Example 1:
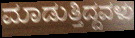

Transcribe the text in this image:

ಮಾಡುತ್ತಿದ್ದವಳು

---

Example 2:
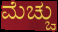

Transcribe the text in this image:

ಮೆಚ್ಚು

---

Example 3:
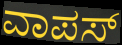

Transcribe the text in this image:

ವಾಪಸ್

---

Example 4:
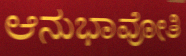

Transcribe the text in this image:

ಆನುಭಾವೋತಿ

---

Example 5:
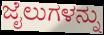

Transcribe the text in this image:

ಜೈಲುಗಳನ್ನು